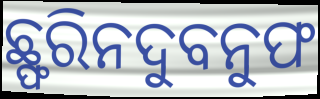
ଛ୍ଫରିନଦୁବନୁଫ